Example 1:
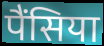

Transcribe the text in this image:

पैंसिया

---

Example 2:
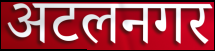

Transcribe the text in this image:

अटलनगर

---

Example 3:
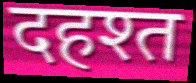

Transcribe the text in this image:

दहश्त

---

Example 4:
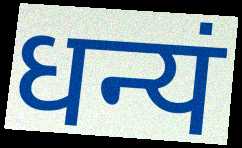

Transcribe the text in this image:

धन्यं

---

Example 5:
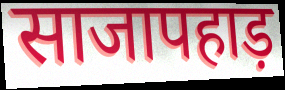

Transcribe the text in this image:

साजापहाड़